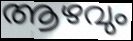
ആഴവും